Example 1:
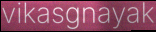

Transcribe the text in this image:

vikasgnayak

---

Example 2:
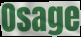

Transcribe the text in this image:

Osage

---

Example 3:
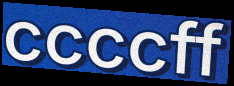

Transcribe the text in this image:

ccccff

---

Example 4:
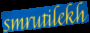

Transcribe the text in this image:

smrutilekh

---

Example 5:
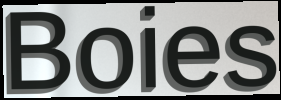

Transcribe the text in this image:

Boies